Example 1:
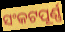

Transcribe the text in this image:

ସଂକଟପୂର୍ଣ୍ଣ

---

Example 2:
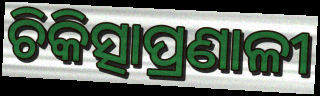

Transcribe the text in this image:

ଚିକିତ୍ସାପ୍ରଣାଳୀ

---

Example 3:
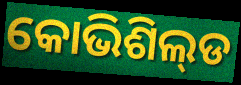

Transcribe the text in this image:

କୋଭିଶିଲ୍‌ଡ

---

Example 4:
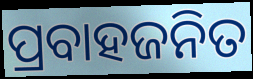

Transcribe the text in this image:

ପ୍ରବାହଜନିତ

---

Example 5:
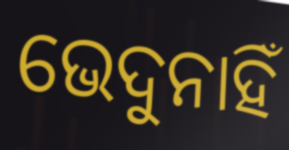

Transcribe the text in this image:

ଭେଦୁନାହିଁ